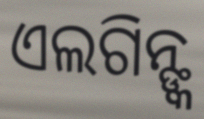
ଏଲଗିନ୍ଙ୍କ